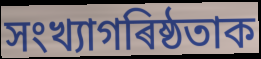
সংখ্যাগৰিষ্ঠতাক